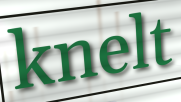
knelt